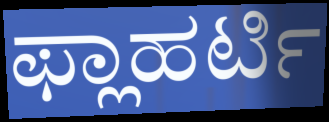
ಫ್ಲಾಹರ್ಟಿ